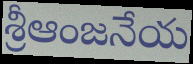
శ్రీఆంజనేయ